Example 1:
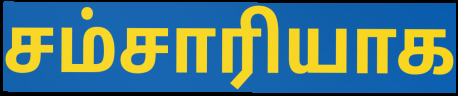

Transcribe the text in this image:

சம்சாரியாக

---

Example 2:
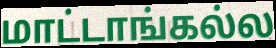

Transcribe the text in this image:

மாட்டாங்கல்ல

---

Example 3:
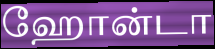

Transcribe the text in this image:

ஹோன்டா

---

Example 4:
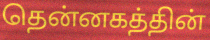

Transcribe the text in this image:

தென்னகத்தின்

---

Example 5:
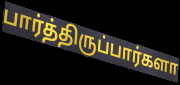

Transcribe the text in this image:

பார்த்திருப்பார்களா